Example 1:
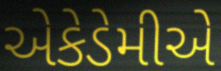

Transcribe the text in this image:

એકેડેમીએ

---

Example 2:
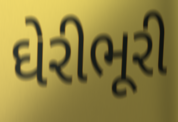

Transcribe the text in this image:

ઘેરીભૂરી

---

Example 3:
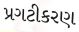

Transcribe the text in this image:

પ્રગટીકરણ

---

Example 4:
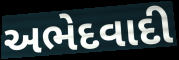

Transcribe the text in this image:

અભેદવાદી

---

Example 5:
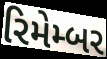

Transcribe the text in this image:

રિમેમ્બર